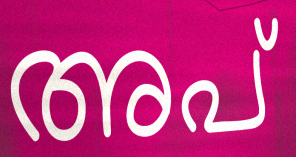
അപ്